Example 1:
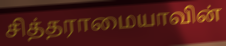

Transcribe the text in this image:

சித்தராமையாவின்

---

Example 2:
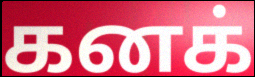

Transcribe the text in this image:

கனக்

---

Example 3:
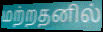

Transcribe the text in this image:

மற்றதனில்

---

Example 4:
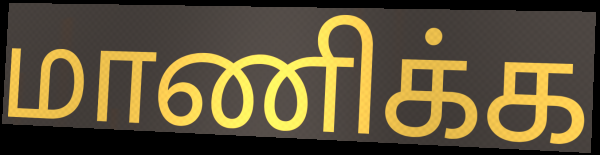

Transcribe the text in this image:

மாணிக்க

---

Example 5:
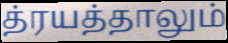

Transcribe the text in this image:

த்ரயத்தாலும்